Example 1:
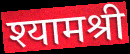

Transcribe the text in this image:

श्यामश्री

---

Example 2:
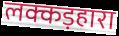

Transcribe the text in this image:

लक्कड़हारा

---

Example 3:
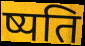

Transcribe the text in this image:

ष्यति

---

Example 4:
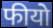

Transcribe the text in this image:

फीयो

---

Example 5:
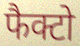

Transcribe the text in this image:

फैक्टो